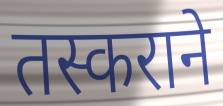
तस्कराने